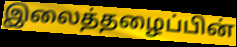
இலைத்தழைப்பின்